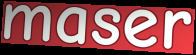
maser